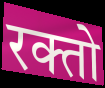
रक्तो